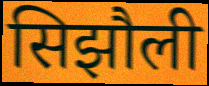
सिझौली